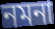
নমনা